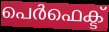
പെർഫെക്ട്